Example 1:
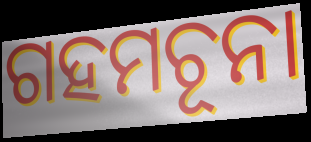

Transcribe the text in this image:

ଗହମଚୂନା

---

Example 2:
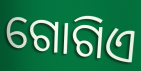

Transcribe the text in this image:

ଗୋଗିଏ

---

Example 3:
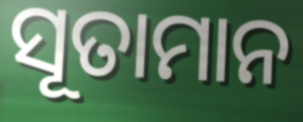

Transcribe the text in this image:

ସୂତାମାନ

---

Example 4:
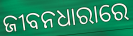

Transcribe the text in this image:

ଜୀବନଧାରାରେ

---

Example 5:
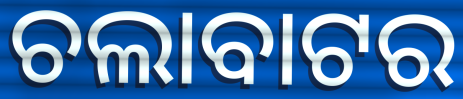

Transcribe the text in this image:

ଚଲାବାଟର